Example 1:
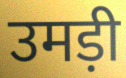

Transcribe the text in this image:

उमड़ी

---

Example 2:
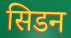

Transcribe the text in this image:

सिडन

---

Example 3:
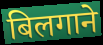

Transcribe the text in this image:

बिलगाने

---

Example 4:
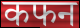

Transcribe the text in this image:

कफन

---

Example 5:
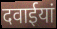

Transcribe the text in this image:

दवाईयां